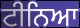
ਟੀਨਿਆ